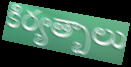
కిర్యత్బాలు